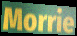
Morrie